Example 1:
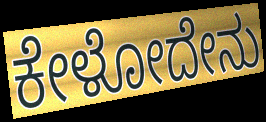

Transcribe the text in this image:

ಕೇಳೋದೇನು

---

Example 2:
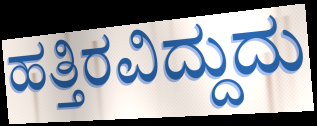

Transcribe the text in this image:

ಹತ್ತಿರವಿದ್ದುದು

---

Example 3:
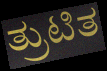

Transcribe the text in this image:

ತ್ರುಟಿತ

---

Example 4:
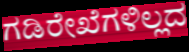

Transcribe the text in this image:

ಗಡಿರೇಖೆಗಳಿಲ್ಲದ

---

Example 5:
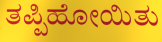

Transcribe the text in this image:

ತಪ್ಪಿಹೋಯಿತು